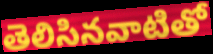
తెలిసినవాటితో